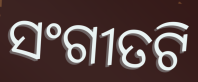
ସଂଗୀତଟି